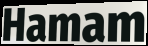
Hamam